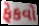
ફેકવો